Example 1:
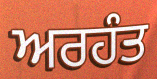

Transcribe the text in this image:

ਅਰਹੰਤ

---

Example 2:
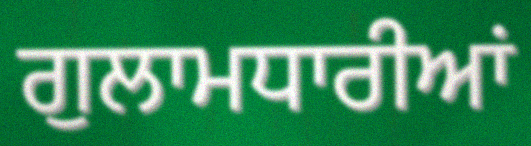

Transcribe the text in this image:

ਗੁਲਾਮਧਾਰੀਆਂ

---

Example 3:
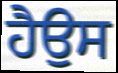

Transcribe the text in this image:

ਹੈਉਸ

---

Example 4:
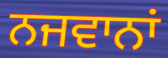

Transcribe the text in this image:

ਨਜਵਾਨਾਂ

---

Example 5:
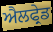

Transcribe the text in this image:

ਐਲਫ੍ਰੇਡ